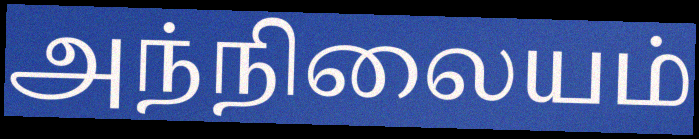
அந்நிலையம்